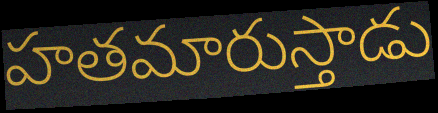
హతమారుస్తాడు